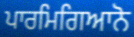
ਪਾਰਮਿਗਿਆਨੋ